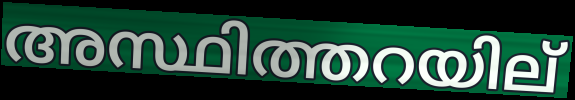
അസ്ഥിത്തറയില്